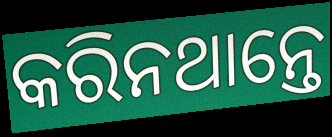
କରିନଥାନ୍ତେ